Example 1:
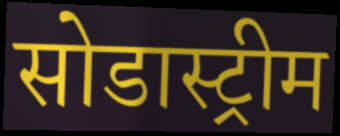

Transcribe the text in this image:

सोडास्ट्रीम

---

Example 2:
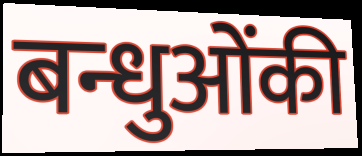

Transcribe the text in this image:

बन्धुओंकी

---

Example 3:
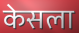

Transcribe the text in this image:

केसला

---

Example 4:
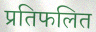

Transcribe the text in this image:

प्रतिफलित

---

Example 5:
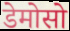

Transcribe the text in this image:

डेमोसो